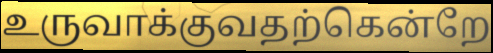
உருவாக்குவதற்கென்றே